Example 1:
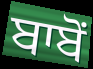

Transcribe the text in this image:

ਬਾਬੋਂ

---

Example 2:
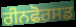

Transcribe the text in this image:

ਰੀਨਫੋਰਸਡ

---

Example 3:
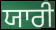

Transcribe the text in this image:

ਯਾਰੀ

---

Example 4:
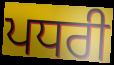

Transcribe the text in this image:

ਪਧਰੀ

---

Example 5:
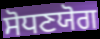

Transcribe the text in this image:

ਸੋਧਣਯੋਗ